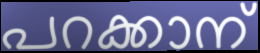
പറക്കാന്